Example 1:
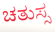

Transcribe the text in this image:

ಚತುಸ್ಸ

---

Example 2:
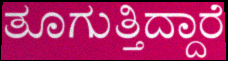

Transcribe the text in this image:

ತೂಗುತ್ತಿದ್ದಾರೆ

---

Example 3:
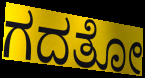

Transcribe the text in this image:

ಗದತೋ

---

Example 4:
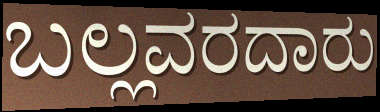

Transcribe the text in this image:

ಬಲ್ಲವರದಾರು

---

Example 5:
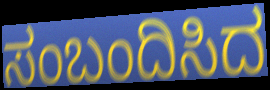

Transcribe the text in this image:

ಸಂಬಂದಿಸಿದ